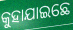
କୁହାଯାଇଛେ